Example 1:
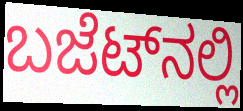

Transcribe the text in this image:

ಬಜೆಟ್‌ನಲ್ಲಿ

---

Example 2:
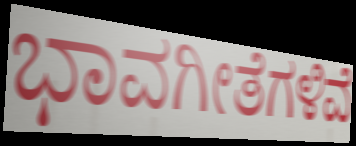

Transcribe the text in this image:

ಭಾವಗೀತೆಗಳಿವೆ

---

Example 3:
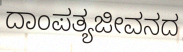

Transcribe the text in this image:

ದಾಂಪತ್ಯಜೀವನದ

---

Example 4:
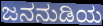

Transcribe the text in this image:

ಜನನುಡಿಯ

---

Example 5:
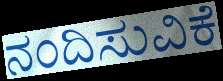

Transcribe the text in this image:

ನಂದಿಸುವಿಕೆ